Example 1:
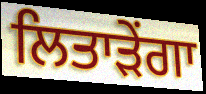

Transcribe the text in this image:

ਲਿਤਾੜੇਂਗਾ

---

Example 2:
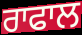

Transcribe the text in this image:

ਰਾਫਾਲ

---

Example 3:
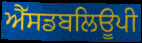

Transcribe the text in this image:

ਐੱਸਡਬਲਿਊਪੀ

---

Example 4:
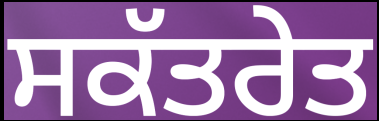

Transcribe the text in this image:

ਸਕੱਤਰੇਤ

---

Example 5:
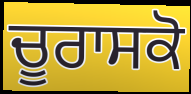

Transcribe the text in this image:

ਚੂਰਾਸਕੋ